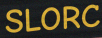
SLORC